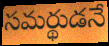
సమర్థుడనే